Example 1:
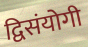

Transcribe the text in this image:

द्विसंयोगी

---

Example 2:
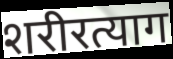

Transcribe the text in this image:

शरीरत्याग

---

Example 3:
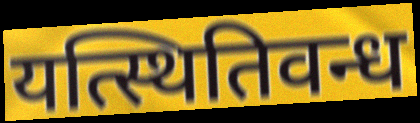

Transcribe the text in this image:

यत्स्थितिवन्ध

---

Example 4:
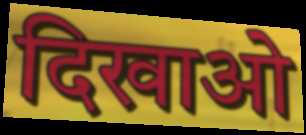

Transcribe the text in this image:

दिखाओ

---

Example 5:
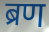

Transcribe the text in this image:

ब्रण